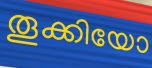
തൂക്കിയോ